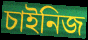
চাইনিজ